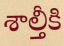
శాల్తీకి